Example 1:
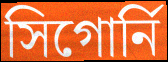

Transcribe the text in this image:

সিগোর্নি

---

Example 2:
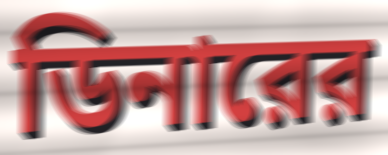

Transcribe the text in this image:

ডিনারের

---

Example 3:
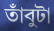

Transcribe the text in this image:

তাঁবুটা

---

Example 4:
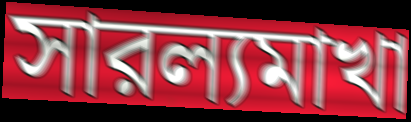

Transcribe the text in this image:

সারল্যমাখা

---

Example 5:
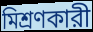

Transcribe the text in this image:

মিশ্রণকারী